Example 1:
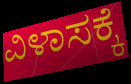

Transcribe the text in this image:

ವಿಳಾಸಕ್ಕೆ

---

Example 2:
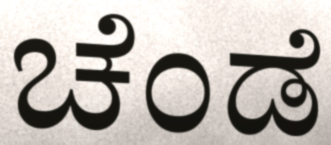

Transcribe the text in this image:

ಚೆಂಡೆ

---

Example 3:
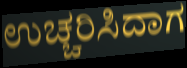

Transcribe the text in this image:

ಉಚ್ಚರಿಸಿದಾಗ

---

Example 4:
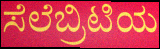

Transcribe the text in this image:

ಸೆಲೆಬ್ರಿಟಿಯ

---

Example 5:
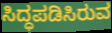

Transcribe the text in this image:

ಸಿದ್ಧಪಡಿಸಿರುವ